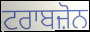
ਟਰਾਬਜ਼ੋਨ